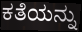
ಕತೆಯನ್ನು